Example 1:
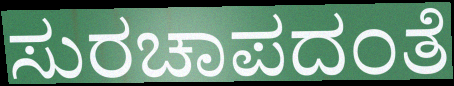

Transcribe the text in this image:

ಸುರಚಾಪದಂತೆ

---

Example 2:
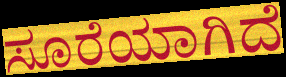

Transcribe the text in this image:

ಸೂರೆಯಾಗಿದೆ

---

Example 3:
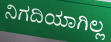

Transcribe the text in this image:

ನಿಗದಿಯಾಗಿಲ್ಲ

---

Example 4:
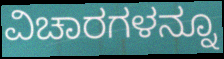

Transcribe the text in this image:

ವಿಚಾರಗಳನ್ನೂ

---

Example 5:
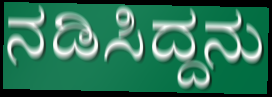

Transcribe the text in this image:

ನಡಿಸಿದ್ದನು